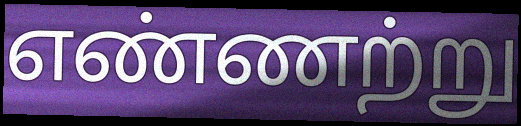
எண்ணற்று